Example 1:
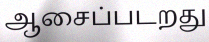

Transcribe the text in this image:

ஆசைப்படறது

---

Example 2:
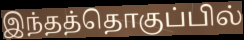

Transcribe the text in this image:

இந்தத்தொகுப்பில்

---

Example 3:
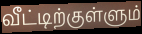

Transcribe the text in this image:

வீட்டிற்குள்ளும்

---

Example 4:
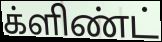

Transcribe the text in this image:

க்ளிண்ட்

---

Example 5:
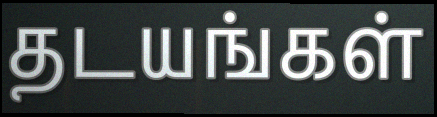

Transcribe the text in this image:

தடயங்கள்